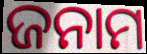
ଜନାମ